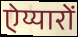
ऐय्यारों